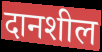
दानशील